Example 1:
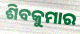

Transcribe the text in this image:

ଶିବକୁମାର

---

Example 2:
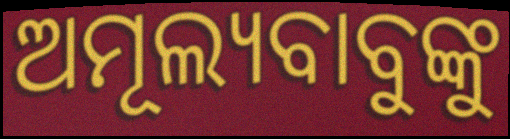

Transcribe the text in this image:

ଅମୂଲ୍ୟବାବୁଙ୍କୁ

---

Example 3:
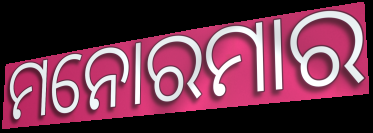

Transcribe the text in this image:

ମନୋରମାର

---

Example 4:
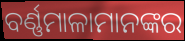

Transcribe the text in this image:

ବର୍ଣ୍ଣମାଳାମାନଙ୍କର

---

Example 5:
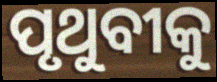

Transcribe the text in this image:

ପୃଥୁବୀକୁ